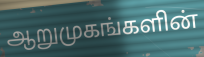
ஆறுமுகங்களின்